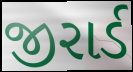
જીરાર્ડ